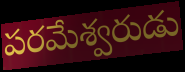
పరమేశ్వరుడు